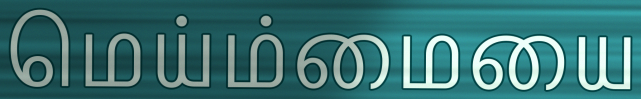
மெய்ம்மையை